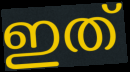
ഇത്